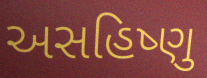
અસહિષ્ણુ